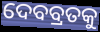
ଦେବବ୍ରତକୁ